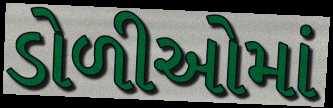
ડોળીઓમાં